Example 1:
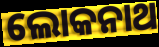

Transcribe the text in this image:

ଲୋକନାଥ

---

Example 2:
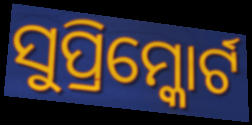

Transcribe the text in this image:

ସୁପ୍ରିମ୍କୋର୍ଟ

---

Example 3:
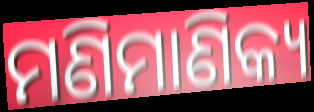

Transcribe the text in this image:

ମଣିମାଣିକ୍ୟ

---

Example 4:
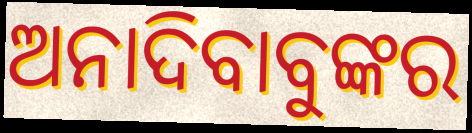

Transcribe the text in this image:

ଅନାଦିବାବୁଙ୍କର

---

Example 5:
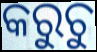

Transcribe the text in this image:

କରୁଚୁ